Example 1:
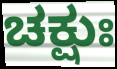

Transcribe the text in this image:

ಚಕ್ಷುಃ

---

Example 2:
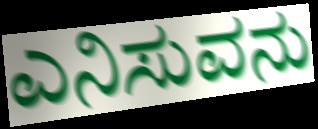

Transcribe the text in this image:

ಎನಿಸುವನು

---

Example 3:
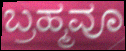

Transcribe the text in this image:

ಬ್ರಹ್ಮವೂ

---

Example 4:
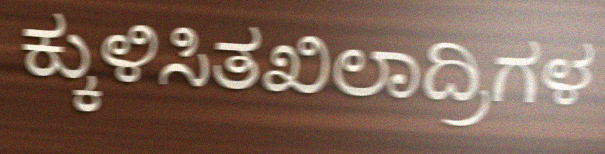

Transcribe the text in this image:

ಕ್ಕುಳಿಸಿತಖಿಲಾದ್ರಿಗಳ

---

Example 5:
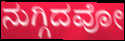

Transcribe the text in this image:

ನುಗ್ಗಿದವೋ